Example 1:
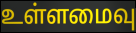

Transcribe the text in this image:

உள்ளமைவு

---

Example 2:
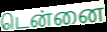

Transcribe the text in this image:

டென்னை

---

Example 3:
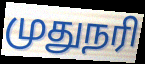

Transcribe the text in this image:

முதுநரி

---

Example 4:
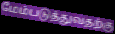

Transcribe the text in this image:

மேம்படுத்துவதற்கு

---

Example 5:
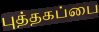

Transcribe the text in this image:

புத்தகப்பை